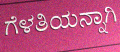
ಗೆಳತಿಯನ್ನಾಗಿ